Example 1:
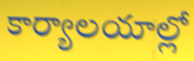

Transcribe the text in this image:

కార్యాలయాల్లో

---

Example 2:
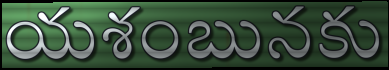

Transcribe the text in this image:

యశంబునకు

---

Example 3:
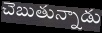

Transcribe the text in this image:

చెబుతున్నాడు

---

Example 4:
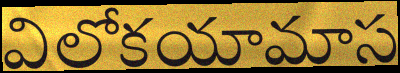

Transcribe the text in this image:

విలోకయామాస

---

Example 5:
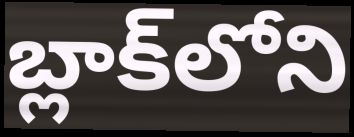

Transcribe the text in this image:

బ్లాక్‌లోని